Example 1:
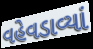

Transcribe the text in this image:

વહેવડાવ્યાં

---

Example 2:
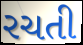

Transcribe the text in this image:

રચતી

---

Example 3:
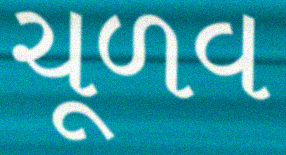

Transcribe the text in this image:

ચૂળવ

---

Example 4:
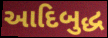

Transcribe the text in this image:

આદિબુદ્ધ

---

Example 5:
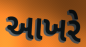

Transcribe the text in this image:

આખરે